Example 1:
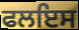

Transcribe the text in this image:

ਫਲਇਸ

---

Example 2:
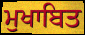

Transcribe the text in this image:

ਮੁਖਾਬਿਤ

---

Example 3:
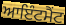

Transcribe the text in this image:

ਆਇੰਟਮੈਂਟ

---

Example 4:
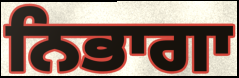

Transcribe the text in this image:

ਨਿਭਾਗਾ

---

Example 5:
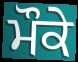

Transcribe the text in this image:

ਮੌਕੇ